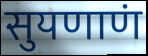
सुयणाणं